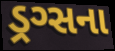
ડ્રગ્સના